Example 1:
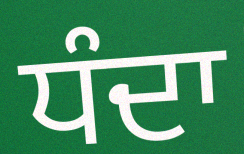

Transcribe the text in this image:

ਧੰਦਾ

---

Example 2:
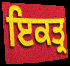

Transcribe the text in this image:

ਇਕਤ੍ਰ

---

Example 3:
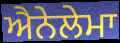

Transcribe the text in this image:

ਐਨੇਲੇਮਾ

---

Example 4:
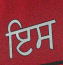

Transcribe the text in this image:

ਇਸ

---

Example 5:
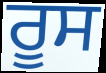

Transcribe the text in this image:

ਰੂਸ